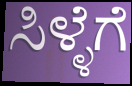
ಸಿಳ್ಳೆಗೆ